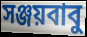
সঞ্জয়বাবু